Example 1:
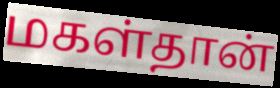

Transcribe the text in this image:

மகள்தான்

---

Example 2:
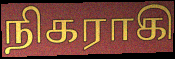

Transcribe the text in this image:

நிகராகி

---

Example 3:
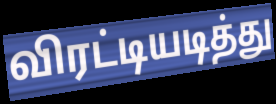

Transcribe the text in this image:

விரட்டியடித்து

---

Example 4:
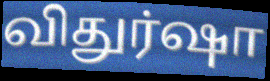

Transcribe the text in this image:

விதுர்ஷா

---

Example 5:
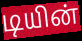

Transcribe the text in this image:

டியின்